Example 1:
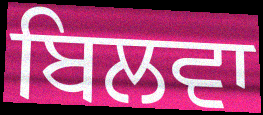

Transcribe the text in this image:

ਬਿਲਵਾ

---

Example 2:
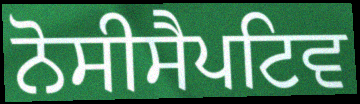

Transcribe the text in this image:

ਨੋਸੀਸੈਪਟਿਵ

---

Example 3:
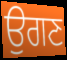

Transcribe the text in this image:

ਉਗਣ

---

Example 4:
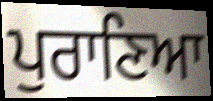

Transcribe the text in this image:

ਪੁਰਾਣਿਆ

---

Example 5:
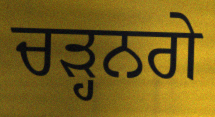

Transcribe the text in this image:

ਚੜ੍ਹਨਗੇ